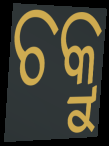
ଚକ୍ରୁ